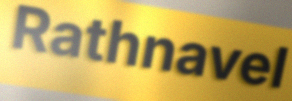
Rathnavel